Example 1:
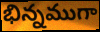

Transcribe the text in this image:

భిన్నముగా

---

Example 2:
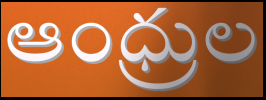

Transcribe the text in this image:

ఆంధ్రుల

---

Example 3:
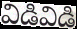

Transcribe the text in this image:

విడివిడి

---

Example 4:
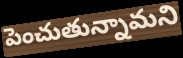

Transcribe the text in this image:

పెంచుతున్నామని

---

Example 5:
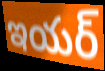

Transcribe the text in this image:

ఇయర్